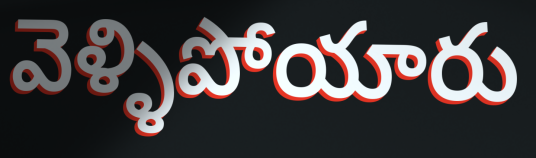
వెళ్ళిపోయారు